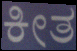
ಕೀತ